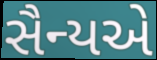
સૈન્યએ